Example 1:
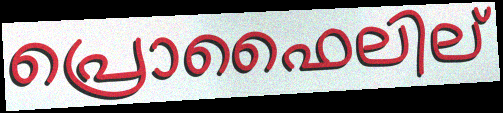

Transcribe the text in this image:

പ്രൊഫൈലില്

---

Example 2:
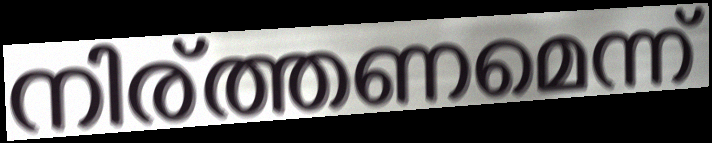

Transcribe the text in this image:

നിര്ത്തണമെന്ന്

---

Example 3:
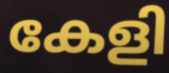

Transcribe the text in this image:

കേളി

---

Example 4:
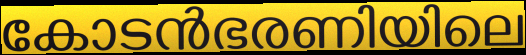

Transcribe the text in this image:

കോടൻഭരണിയിലെ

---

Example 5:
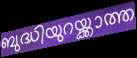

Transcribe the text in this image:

ബുദ്ധിയുറയ്ക്കാത്ത